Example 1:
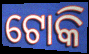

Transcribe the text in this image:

ଟୋକି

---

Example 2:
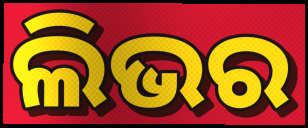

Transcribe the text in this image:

ଲିଭର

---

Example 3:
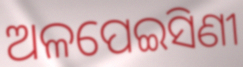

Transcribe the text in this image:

ଅଳପେଇସିଣୀ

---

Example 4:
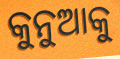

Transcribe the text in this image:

କୁନୁଆକୁ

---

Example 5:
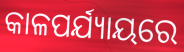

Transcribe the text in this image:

କାଳପର୍ଯ୍ୟାୟରେ